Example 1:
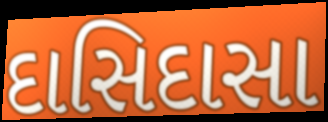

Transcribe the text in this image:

દાસિદાસા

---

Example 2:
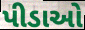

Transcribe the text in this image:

પીડાઓ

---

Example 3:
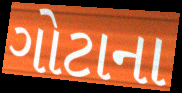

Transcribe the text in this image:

ગોટાના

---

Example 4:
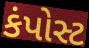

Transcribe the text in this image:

કંપોસ્ટ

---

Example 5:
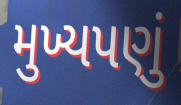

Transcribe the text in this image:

મુખ્યપણું